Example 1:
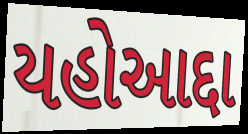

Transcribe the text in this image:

યહોઆદ્દા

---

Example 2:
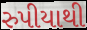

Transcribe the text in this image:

રુપીયાથી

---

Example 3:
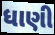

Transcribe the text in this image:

ધાણી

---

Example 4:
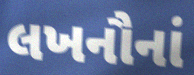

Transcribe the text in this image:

લખનૌનાં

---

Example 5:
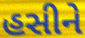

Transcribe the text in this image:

હસીને